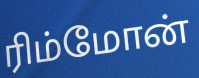
ரிம்மோன்